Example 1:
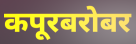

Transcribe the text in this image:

कपूरबरोबर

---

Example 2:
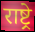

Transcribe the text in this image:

राष्ट्रे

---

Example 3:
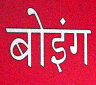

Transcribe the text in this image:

बोइंग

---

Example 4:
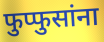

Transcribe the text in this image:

फुप्फुसांना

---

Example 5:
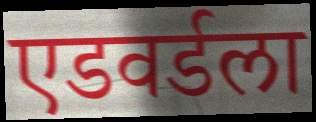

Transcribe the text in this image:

एडवर्डला